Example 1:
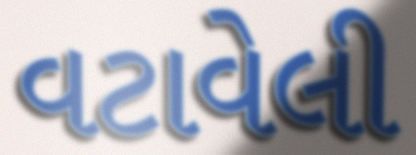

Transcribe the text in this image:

વટાવેલી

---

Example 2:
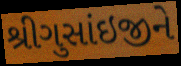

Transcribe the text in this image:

શ્રીગુસાંઇજીને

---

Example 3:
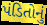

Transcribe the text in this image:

પંડિતોનું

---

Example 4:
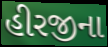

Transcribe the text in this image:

હીરજીના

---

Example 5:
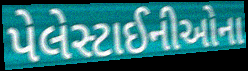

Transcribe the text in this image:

પેલેસ્ટાઈનીઓના